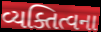
વ્યક્તિત્વના